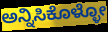
ಅನ್ನಿಸಿಕೊಳ್ಳೋ